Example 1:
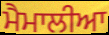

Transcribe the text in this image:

ਮੈਮਾਲੀਆ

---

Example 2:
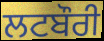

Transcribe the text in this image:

ਲਟਬੌਰੀ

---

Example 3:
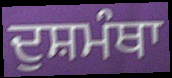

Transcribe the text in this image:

ਦੁਸ਼ਮੰਥਾ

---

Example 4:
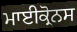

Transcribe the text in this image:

ਮਾਈਕ੍ਰੋਨਸ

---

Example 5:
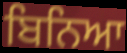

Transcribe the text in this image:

ਬਿਨਿਆ